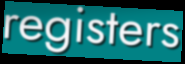
registers